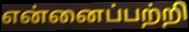
என்னைப்பற்றி